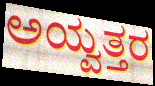
ಅಯ್ವತ್ತರ